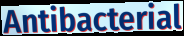
Antibacterial